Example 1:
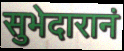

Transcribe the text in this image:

सुभेदारानं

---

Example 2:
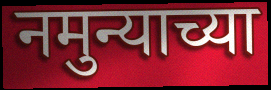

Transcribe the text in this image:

नमुन्याच्या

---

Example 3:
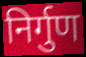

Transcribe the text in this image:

निर्गुण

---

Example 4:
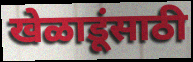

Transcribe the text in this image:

खेळाडूंसाठी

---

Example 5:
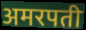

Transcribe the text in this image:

अमरपती